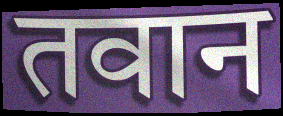
तवान